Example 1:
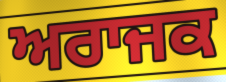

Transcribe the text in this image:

ਅਰਾਜਕ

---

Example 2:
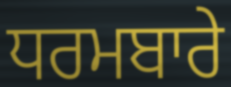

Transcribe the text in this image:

ਧਰਮਬਾਰੇ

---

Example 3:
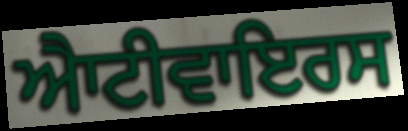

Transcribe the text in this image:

ਐਾਟੀਵਾਇਰਸ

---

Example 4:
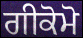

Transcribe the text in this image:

ਗੀਕੋਮੋ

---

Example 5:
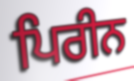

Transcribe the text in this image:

ਪਿਰੀਨ